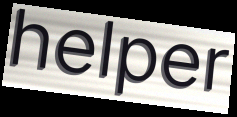
helper